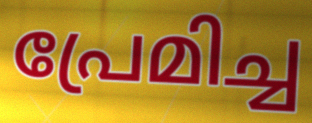
പ്രേമിച്ച